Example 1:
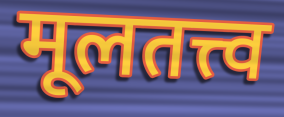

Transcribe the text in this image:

मूलतत्त्व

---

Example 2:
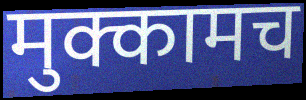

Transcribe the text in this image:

मुक्कामच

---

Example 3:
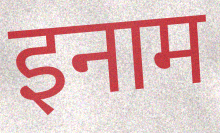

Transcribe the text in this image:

इनाम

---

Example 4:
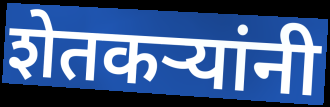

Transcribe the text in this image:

शेतकर्‍यांनी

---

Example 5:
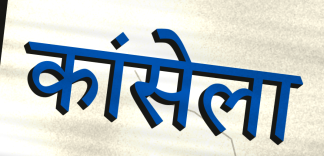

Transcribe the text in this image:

कांसेला